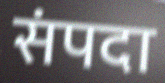
संपदा